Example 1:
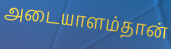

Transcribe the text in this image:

அடையாளம்தான்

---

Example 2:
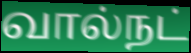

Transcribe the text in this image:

வால்நட்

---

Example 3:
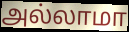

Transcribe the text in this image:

அல்லாமா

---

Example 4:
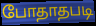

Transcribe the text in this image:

போதாதபடி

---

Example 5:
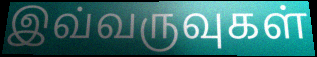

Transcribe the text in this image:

இவ்வருவுகள்